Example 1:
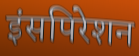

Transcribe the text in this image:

इंसपिरेशन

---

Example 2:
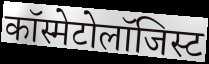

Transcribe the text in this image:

कॉस्मेटोलॉजिस्ट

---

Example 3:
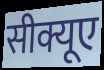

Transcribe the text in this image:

सीक्यूए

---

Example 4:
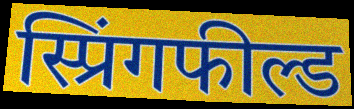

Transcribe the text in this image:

स्प्रिंगफील्ड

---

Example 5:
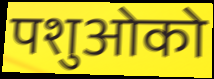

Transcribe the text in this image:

पशुओको